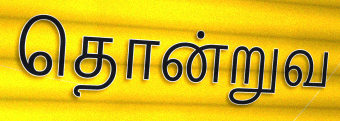
தொன்றுவ